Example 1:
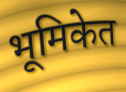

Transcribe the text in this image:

भूमिकेत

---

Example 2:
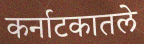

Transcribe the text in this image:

कर्नाटकातले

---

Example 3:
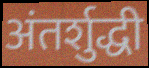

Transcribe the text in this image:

अंतर्शुद्धी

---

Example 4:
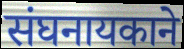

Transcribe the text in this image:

संघनायकाने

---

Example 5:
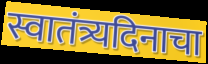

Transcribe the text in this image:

स्वातंत्र्यदिनाचा